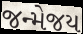
જન્મેજય